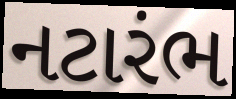
નટારંભ